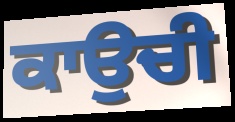
ਕਾਉਚੀ